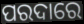
ପରଦାରେ